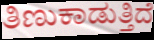
ತಿಣುಕಾಡುತ್ತಿದೆ